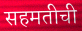
सहमतीची